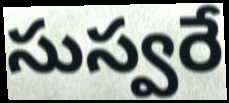
సుస్వరే